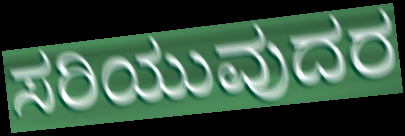
ಸರಿಯುವುದರ